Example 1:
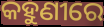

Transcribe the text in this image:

କହୁଣୀରେ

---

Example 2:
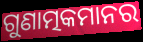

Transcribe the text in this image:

ଗୁଣାତ୍ମକମାନର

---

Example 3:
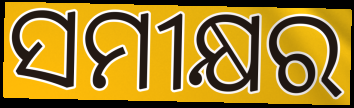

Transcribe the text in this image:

ସମୀକ୍ଷର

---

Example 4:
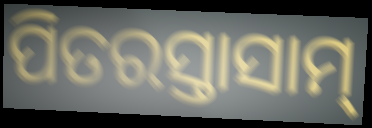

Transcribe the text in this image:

ପିତରସ୍ତାସାମ୍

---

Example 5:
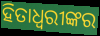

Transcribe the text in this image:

ହିତାଧ୍ଵରୀଙ୍କର